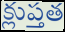
క్లుప్తత